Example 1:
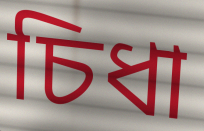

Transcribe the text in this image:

চিধা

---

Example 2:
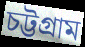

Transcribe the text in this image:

চট্টগ্ৰাম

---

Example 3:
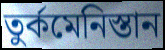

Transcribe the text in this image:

তুৰ্কমেনিস্তান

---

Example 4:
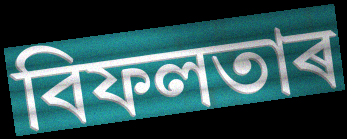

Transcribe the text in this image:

বিফলতাৰ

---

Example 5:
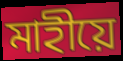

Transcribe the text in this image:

মাহীয়ে